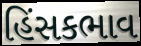
હિંસકભાવ